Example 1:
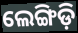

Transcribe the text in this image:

ଲେଙ୍ଗିଡ଼ି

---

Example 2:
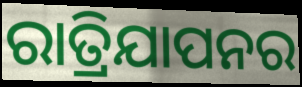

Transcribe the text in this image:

ରାତ୍ରିଯାପନର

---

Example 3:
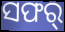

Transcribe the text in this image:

ସଫର୍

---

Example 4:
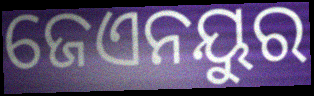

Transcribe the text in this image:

ଜେଏନୟୁର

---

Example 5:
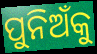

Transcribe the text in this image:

ପୁନିଅଁକୁ